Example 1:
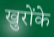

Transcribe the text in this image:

खुरोंके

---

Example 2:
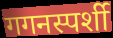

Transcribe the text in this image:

गगनस्पर्शी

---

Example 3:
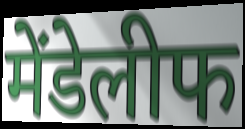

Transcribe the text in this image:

मेंडेलीफ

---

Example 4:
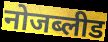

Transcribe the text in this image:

नोजब्लीड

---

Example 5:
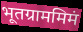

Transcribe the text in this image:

भूतग्राममिमं